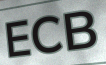
ECB